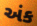
અંક